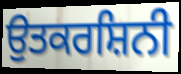
ਉਤਕਰਸ਼ਿਨੀ